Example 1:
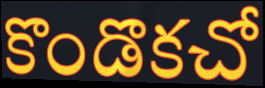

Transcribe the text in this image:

కొండొకచో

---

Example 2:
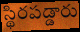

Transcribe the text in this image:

స్థిరపడ్డారు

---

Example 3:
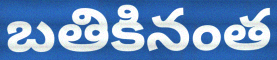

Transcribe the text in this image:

బతికినంత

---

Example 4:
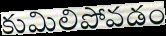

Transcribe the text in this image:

కుమిలిపోవడం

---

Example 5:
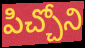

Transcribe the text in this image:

పిచ్చోని